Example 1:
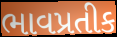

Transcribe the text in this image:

ભાવપ્રતીક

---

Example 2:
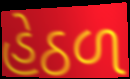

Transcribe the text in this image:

હેઠળ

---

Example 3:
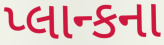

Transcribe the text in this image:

પ્લાન્કના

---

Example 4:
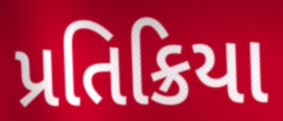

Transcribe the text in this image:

પ્રતિક્રિયા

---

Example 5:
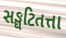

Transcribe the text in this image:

સઙ્ઘટિતત્તા